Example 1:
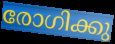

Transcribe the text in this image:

രോഗിക്കു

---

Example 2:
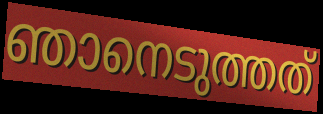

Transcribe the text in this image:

ഞാനെടുത്തത്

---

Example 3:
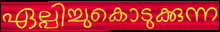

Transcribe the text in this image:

ഏല്പിച്ചുകൊടുക്കുന്ന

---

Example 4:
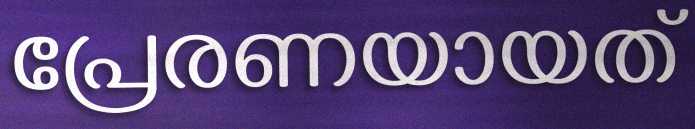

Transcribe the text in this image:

പ്രേരണയായത്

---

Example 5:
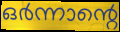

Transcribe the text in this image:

ഒർന്നാന്റെ